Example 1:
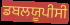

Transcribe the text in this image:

ਡਬਲਯੂਪੀਸੀ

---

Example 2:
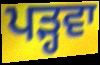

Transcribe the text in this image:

ਪੜ੍ਹਵਾ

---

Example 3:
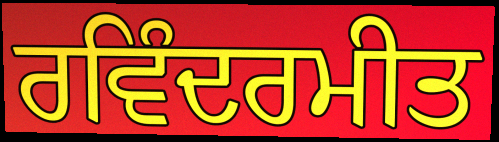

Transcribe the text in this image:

ਰਵਿੰਦਰਮੀਤ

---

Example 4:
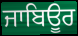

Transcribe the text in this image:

ਜਾਬਿਊਰ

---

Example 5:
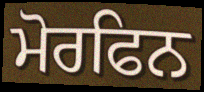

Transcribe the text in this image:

ਮੋਰਫਿਨ